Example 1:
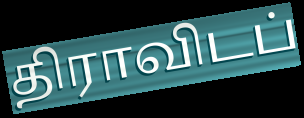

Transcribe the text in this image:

திராவிடப்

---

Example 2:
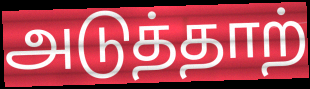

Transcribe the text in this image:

அடுத்தாற்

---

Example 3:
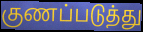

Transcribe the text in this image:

குணப்படுத்து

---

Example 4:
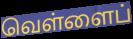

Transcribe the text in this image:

வெள்ளைப்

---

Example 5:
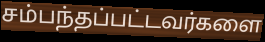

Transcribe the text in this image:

சம்பந்தப்பட்டவர்களை